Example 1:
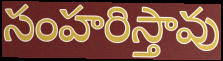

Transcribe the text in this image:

సంహరిస్తావు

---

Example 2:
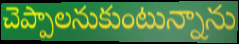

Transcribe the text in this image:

చెప్పాలనుకుంటున్నాను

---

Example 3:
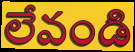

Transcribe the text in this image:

లేవండి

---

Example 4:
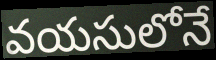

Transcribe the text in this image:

వయసులోనే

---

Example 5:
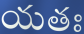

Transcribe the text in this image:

యతః